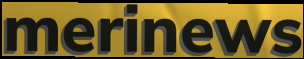
merinews